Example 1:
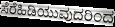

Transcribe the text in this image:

ಸೆರೆಹಿಡಿಯುವುದರಿಂದ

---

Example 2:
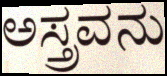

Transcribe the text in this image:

ಅಸ್ತ್ರವನು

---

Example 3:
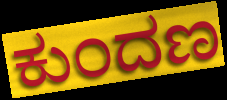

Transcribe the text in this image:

ಕುಂದಣ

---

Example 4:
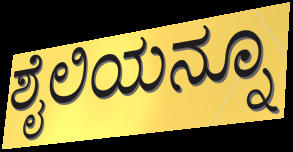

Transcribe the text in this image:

ಶೈಲಿಯನ್ನೂ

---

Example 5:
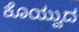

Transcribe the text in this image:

ಕೊಯ್ವುದ